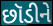
છૉડીને